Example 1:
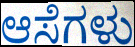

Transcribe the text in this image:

ಆಸೆಗಳು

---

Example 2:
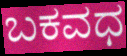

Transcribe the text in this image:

ಬಕವಧ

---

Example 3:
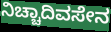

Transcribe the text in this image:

ನಿಚ್ಚಾದಿವಸೇನ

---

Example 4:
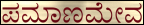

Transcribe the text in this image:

ಪಮಾಣಮೇವ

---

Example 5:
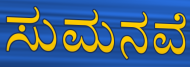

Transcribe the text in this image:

ಸುಮನವೆ